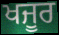
ਖਜੂਰ